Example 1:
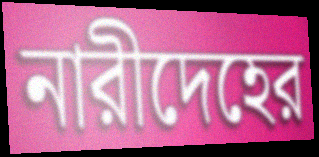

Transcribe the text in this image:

নারীদেহের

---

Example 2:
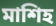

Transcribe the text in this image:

মাশিহ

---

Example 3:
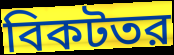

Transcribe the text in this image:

বিকটতর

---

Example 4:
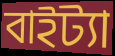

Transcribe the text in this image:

বাইট্যা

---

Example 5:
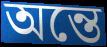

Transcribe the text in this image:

অন্তে